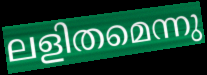
ലളിതമെന്നു